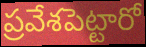
ప్రవేశపెట్టారో